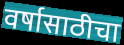
वर्षासाठीचा